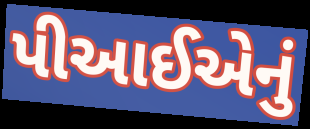
પીઆઈએનું